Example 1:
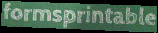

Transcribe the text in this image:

formsprintable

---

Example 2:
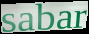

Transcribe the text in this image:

sabar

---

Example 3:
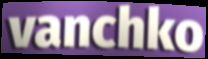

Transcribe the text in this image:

vanchko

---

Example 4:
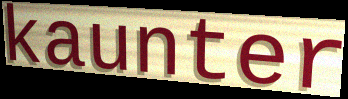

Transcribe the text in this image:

kaunter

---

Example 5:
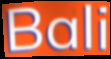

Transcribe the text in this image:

Bali